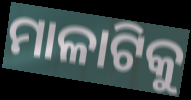
ମାଳାଟିକୁ